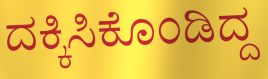
ದಕ್ಕಿಸಿಕೊಂಡಿದ್ದ